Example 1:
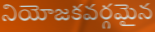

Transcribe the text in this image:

నియోజకవర్గమైన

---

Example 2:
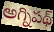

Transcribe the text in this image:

అగ్నిపథ్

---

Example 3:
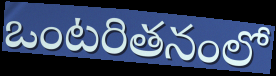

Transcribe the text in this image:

ఒంటరితనంలో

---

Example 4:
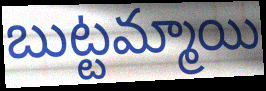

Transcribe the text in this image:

బుట్టమ్మాయి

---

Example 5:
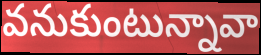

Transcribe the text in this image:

వనుకుంటున్నావా